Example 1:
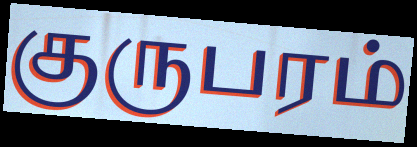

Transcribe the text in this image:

குருபரம்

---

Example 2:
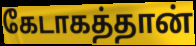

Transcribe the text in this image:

கேடாகத்தான்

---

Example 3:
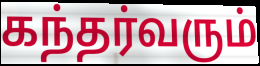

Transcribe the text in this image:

கந்தர்வரும்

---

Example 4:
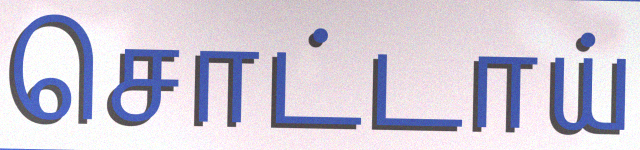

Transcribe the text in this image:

சொட்டாய்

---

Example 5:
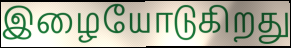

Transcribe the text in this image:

இழையோடுகிறது